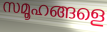
സമൂഹങ്ങളെ